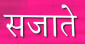
सजाते